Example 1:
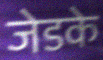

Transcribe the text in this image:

जेडके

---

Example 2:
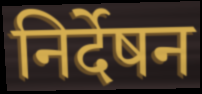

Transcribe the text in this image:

निर्देषन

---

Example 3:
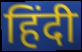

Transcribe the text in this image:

हिंदी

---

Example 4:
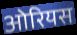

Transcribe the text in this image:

ओरियस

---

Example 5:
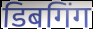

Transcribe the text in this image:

डिबगिंग